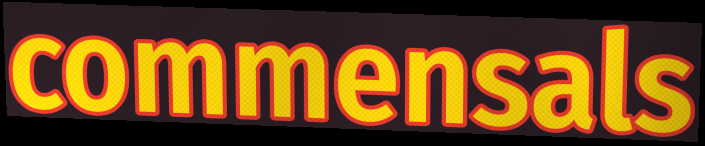
commensals